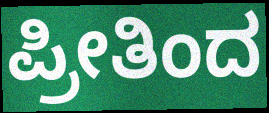
ಪ್ರೀತಿಂದ